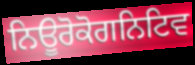
ਨਿਊਰੋਕੋਗਨਿਟਿਵ